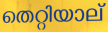
തെറ്റിയാല്